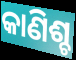
କାଣିଶ୍ଚ